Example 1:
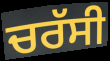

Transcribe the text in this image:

ਚਰੱਸੀ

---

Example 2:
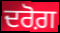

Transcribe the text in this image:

ਦਰੋਗ਼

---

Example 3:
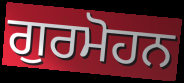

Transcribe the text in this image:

ਗੁਰਮੋਹਨ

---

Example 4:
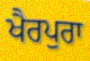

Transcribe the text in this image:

ਖੈਰਪੁਰਾ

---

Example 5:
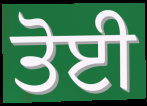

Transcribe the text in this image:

ਤੋਈ